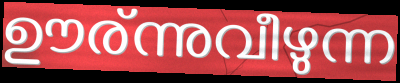
ഊര്ന്നുവീഴുന്ന